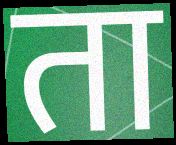
ता